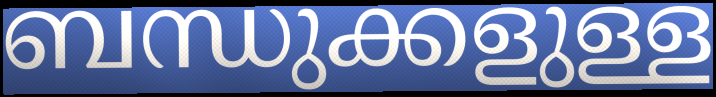
ബന്ധുക്കളുള്ള